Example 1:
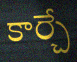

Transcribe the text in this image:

కార్చే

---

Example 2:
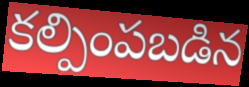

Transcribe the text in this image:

కల్పింపబడిన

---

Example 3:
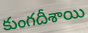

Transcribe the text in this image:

కుంగదీశాయి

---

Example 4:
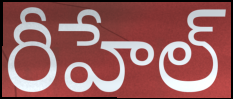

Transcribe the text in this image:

రీహేల్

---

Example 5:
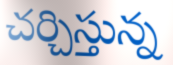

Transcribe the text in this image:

చర్చిస్తున్న